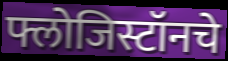
फ्लोजिस्टॉनचे